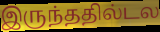
இருந்ததில்டல